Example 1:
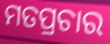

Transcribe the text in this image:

ମତପ୍ରଚାର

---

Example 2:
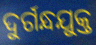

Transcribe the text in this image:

ଦୁର୍ଗନ୍ଧଯୁକ୍ତ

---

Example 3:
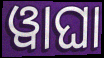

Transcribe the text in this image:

ୱାଘା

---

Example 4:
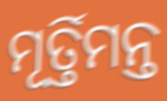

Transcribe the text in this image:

ମୂର୍ତ୍ତିମନ୍ତ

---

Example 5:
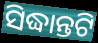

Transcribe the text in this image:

ସିଦ୍ଧାନ୍ତଟି